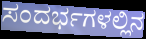
ಸಂದರ್ಭಗಳಲ್ಲಿನ